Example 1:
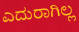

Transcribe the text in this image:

ಎದುರಾಗಿಲ್ಲ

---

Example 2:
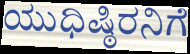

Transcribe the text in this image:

ಯುಧಿಷ್ಠಿರನಿಗೆ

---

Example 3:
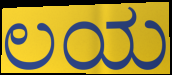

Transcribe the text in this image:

ಲಯ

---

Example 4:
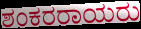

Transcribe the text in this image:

ಶಂಕರರಾಯರು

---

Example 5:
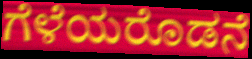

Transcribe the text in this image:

ಗೆಳೆಯರೊಡನೆ